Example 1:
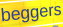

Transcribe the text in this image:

beggers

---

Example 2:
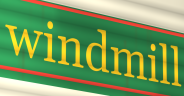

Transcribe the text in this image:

windmill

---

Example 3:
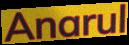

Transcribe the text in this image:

Anarul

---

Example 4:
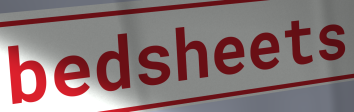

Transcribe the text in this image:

bedsheets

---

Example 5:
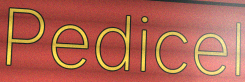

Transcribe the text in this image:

Pedicel